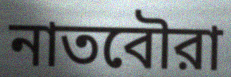
নাতবৌরা